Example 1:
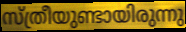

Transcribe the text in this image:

സ്ത്രീയുണ്ടായിരുന്നു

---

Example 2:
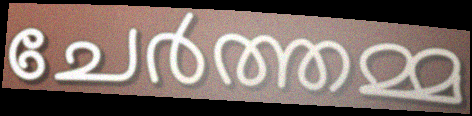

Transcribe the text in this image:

ചേർത്തമ്മ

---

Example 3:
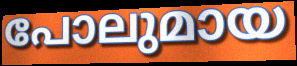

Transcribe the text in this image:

പോലുമായ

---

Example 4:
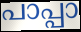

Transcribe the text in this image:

പാപ്പാ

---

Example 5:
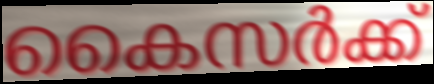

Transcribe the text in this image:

കൈസർക്ക്